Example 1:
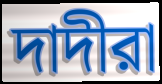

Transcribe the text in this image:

দাদীরা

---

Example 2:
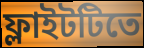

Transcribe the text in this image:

ফ্লাইটটিতে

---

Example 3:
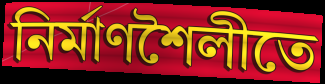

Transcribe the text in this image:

নির্মাণশৈলীতে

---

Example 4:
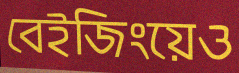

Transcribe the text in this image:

বেইজিংয়েও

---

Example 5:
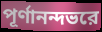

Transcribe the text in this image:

পূর্ণানন্দভরে